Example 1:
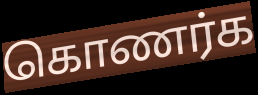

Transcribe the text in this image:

கொணர்க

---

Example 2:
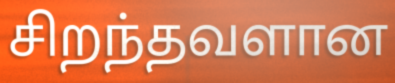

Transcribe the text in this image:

சிறந்தவளான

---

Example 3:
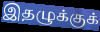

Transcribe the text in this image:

இதழுக்குக்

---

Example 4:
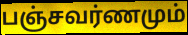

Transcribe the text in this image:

பஞ்சவர்ணமும்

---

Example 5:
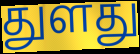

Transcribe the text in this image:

துளது